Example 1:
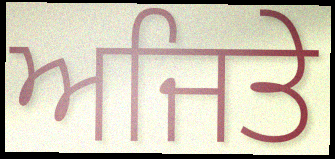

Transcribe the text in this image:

ਅਜਿਤੇ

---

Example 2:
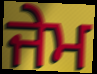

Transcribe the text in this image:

ਜੇਮ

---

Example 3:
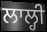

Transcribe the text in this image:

ਲਾਲ੍ਹੀ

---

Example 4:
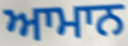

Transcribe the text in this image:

ਆਮਾਨ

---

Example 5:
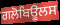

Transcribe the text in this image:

ਗਲੋਬਿਊਲਸ